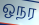
ஒநர